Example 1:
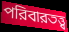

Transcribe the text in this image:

পরিবারতত্ত্ব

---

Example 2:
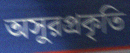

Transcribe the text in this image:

অসুরপ্রকৃতি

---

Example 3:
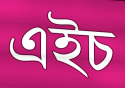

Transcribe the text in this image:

এইচ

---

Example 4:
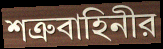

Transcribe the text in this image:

শত্রুবাহিনীর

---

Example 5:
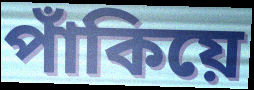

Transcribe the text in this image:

পাঁকিয়ে